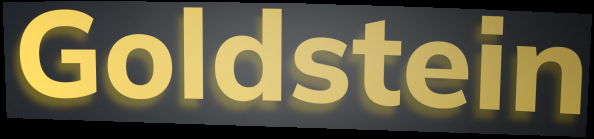
Goldstein